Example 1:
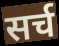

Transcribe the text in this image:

सर्च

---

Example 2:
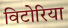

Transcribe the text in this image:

विटोरिया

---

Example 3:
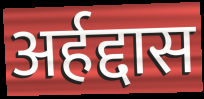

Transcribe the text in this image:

अर्हद्दास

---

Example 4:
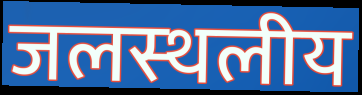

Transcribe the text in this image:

जलस्थलीय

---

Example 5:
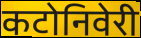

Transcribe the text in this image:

कटोनिवेरी